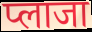
प्लाजा